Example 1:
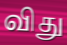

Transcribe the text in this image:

விது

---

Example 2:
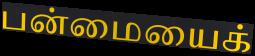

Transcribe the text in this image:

பன்மையைக்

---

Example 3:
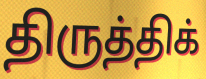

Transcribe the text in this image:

திருத்திக்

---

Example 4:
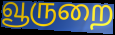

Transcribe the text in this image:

வூருறை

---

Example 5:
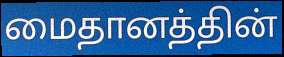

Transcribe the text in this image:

மைதானத்தின்